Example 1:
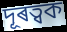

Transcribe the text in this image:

দূৰত্বক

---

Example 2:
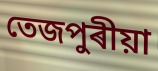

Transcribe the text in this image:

তেজপুৰীয়া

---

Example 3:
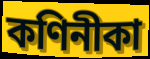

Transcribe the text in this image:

কণিনীকা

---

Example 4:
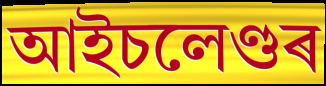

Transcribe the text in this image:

আইচলেণ্ডৰ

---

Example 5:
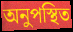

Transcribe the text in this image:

অনুপস্থিত